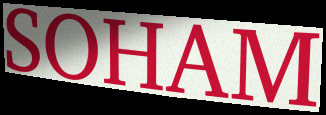
SOHAM